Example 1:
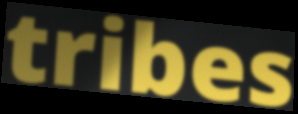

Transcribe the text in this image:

tribes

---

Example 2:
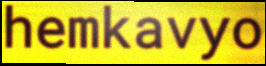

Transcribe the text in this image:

hemkavyo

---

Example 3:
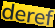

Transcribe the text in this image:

deref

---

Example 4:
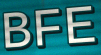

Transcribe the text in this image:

BFE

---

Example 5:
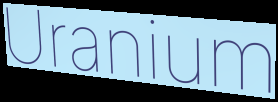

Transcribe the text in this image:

Uranium